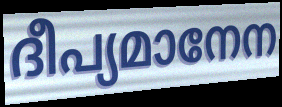
ദീപ്യമാനേന